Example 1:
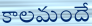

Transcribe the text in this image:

కాలమందే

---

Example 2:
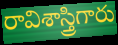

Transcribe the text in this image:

రావిశాస్త్రిగారు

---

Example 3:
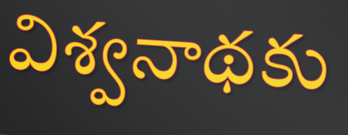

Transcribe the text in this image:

విశ్వనాథకు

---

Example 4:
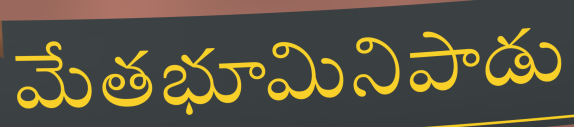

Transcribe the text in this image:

మేతభూమినిపాడు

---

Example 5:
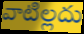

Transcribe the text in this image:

వాటిల్లదు